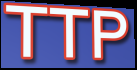
TTP